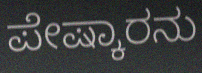
ಪೇಷ್ಕಾರನು